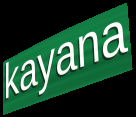
kayana